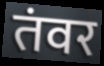
तंवर